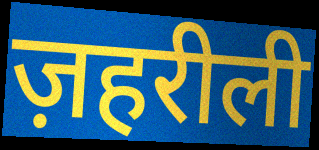
ज़हरीली